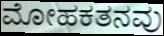
ಮೋಹಕತನವು